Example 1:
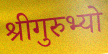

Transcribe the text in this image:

श्रीगुरुभ्यो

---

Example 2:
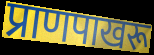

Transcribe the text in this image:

प्राणपाखरू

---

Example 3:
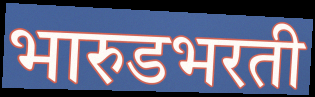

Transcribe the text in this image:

भारुडभरती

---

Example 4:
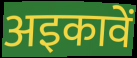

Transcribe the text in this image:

अइकावें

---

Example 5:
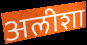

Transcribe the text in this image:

अलीशा